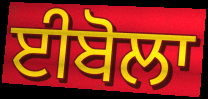
ਈਬੋਲਾ